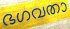
ഭഗവതാ